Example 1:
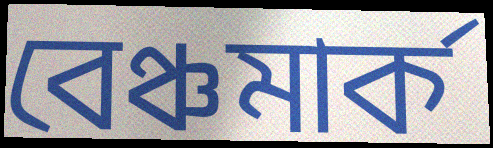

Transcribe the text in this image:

বেঞ্চমার্ক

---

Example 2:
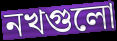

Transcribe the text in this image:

নখগুলো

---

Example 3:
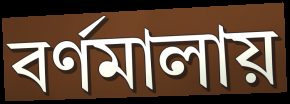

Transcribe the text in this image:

বর্ণমালায়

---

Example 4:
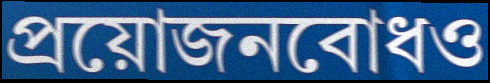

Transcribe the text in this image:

প্রয়োজনবোধও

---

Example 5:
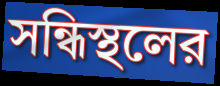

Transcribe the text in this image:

সন্ধিস্থলের